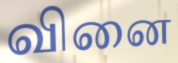
வினை